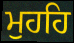
ਮੁਹਹਿ